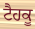
ਟੈਹਕੂ